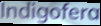
Indigofera